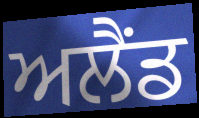
ਅਲੈਂਡ